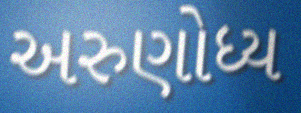
અરુણોધ્ય